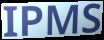
IPMS